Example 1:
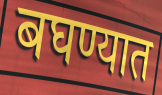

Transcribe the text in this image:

बघण्यात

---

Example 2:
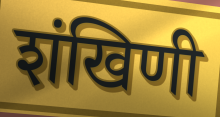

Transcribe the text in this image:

शंखिणी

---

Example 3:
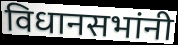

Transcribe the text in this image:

विधानसभांनी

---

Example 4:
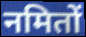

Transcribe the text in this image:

नमितों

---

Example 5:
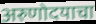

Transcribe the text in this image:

अरुणोदयाचा